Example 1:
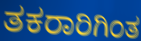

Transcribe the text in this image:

ತಕರಾರಿಗಿಂತ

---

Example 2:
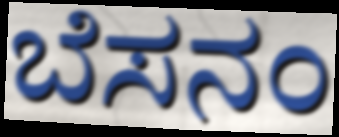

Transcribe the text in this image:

ಬೆಸನಂ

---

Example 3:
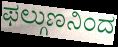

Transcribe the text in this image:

ಫಲ್ಗುಣನಿಂದ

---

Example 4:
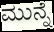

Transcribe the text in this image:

ಮುನ್ನೆ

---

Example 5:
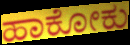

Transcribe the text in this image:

ಹಾಕೋಕು